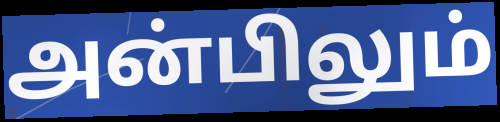
அன்பிலும்